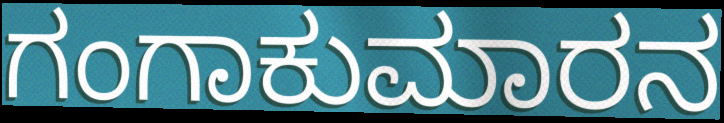
ಗಂಗಾಕುಮಾರನ